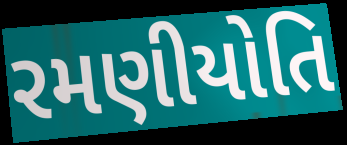
રમણીયોતિ